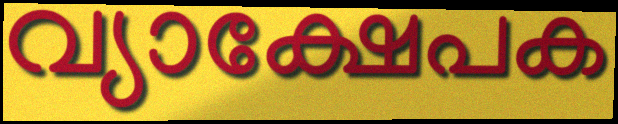
വ്യാക്ഷേപക